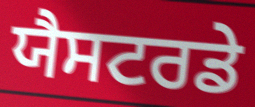
ਯੈਸਟਰਡੇ